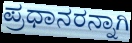
ಪ್ರಧಾನರನ್ನಾಗಿ